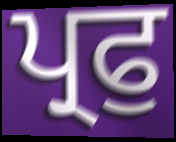
ਪ੍ਰਫੁ